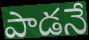
పాడనే